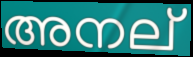
അനല്